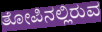
ತೋಪಿನಲ್ಲಿರುವ